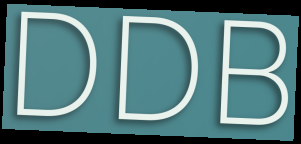
DDB